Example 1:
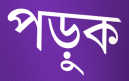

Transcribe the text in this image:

পড়ুক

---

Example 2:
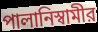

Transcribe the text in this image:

পালানিস্বামীর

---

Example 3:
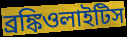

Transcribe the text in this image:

ব্রঙ্কিওলাইটিস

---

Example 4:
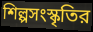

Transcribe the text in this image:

শিল্পসংস্কৃতির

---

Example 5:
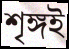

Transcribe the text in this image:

শৃঙ্গই